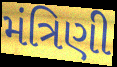
મંત્રિણી